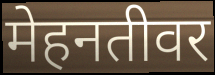
मेहनतीवर